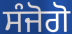
ਸੰਜੋਗੋ